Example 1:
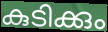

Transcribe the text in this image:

കുടിക്കും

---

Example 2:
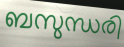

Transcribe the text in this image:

ബസുന്ധരി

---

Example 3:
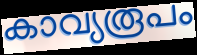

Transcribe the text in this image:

കാവ്യരൂപം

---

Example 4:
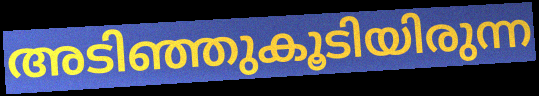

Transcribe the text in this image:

അടിഞ്ഞുകൂടിയിരുന്ന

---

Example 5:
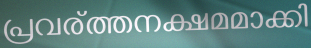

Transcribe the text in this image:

പ്രവര്ത്തനക്ഷമമാക്കി